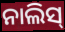
ନାଲିସ୍